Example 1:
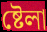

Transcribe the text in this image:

ষ্টেলা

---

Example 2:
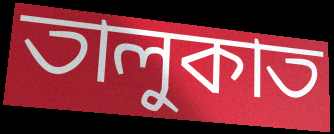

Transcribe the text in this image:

তালুকাত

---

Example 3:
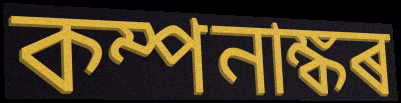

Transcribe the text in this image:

কম্পনাঙ্কৰ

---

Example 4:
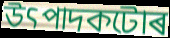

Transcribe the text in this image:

উৎপাদকটোৰ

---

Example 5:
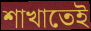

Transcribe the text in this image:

শাখাতেই